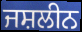
ਜਸ਼ਲੀਨ